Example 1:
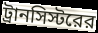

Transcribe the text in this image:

ট্রানসিস্টরের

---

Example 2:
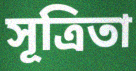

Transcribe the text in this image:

সূত্রিতা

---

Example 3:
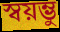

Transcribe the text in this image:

স্বয়ম্ভু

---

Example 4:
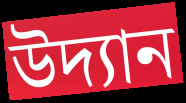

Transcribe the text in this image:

উদ্যান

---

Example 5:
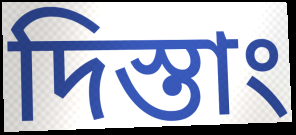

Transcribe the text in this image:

দিস্তাং